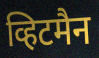
व्हिटमैन